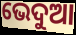
ଭେଦୁଆ